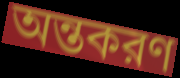
অন্তকরণ